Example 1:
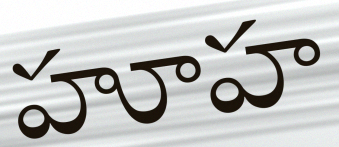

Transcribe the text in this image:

హూహ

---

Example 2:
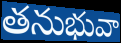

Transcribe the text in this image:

తనుభువా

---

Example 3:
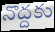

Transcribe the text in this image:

నొద్దకు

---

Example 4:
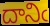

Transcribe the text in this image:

దానిఁ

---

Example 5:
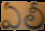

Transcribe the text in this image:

ఏలీ